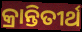
କ୍ରାନ୍ତିତୀର୍ଥ